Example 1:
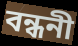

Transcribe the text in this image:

বন্ধনী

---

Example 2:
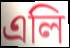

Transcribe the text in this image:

এলি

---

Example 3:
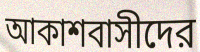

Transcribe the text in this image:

আকাশবাসীদের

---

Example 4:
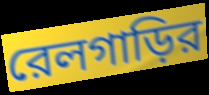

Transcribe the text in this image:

রেলগাড়ির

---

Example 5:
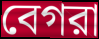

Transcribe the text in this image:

বেগরা